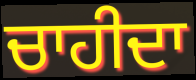
ਚਾਹੀਦਾ